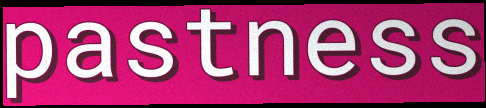
pastness